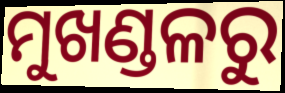
ମୁଖଣ୍ଡଳରୁ